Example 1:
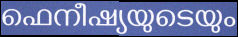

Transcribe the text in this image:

ഫെനീഷ്യയുടെയും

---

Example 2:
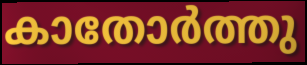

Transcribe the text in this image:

കാതോർത്തു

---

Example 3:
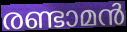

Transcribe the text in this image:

രണ്ടാമൻ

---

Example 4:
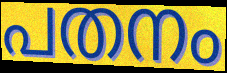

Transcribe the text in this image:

പതനം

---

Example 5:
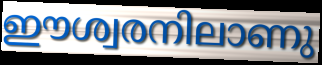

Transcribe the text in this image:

ഈശ്വരനിലാണു